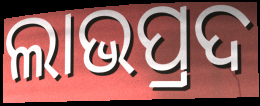
ଲାଭପ୍ରଦ